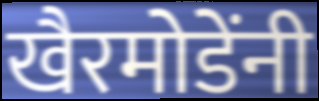
खैरमोडेंनी